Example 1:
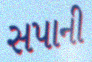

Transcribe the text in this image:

સપાની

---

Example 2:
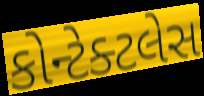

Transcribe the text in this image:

કોન્ટેક્ટલેસ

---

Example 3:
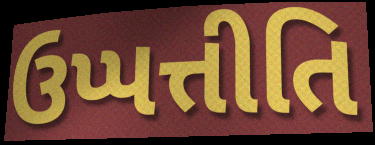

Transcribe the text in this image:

ઉપ્પત્તીતિ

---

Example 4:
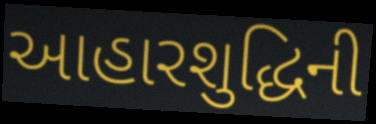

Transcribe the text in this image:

આહારશુદ્ધિની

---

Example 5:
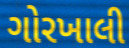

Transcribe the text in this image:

ગોરખાલી